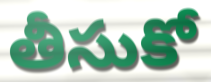
తీసుకో